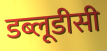
डब्लूडीसी